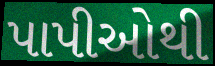
પાપીઓથી